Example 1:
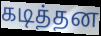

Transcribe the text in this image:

கடித்தன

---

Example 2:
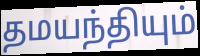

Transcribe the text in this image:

தமயந்தியும்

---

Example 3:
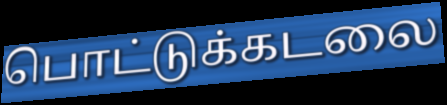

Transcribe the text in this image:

பொட்டுக்கடலை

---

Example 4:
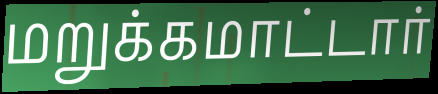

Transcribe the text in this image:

மறுக்கமாட்டார்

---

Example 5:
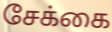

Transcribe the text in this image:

சேக்கை